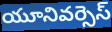
యూనివర్సెస్